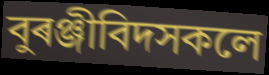
বুৰঞ্জীবিদসকলে